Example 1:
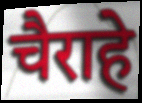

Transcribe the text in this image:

चैराहे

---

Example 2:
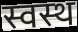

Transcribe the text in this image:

स्वस्थ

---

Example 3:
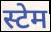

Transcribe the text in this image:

स्टेम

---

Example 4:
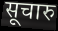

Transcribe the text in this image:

सूचारु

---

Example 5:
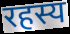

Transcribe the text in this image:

रहस्य